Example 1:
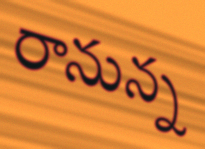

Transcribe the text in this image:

రానున్న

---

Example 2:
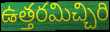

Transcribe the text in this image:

ఉత్తరమిచ్చిరి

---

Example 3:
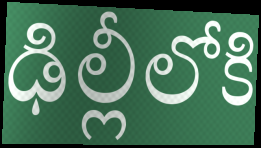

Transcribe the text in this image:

ఢిల్లీలోకి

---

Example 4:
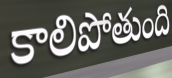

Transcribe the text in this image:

కాలిపోతుంది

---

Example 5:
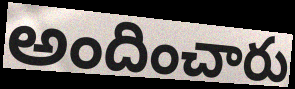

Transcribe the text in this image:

అందించారు